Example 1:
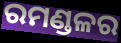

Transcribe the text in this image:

ରମଣ୍ଡଳର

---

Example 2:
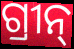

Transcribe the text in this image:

ଗ୍ରୀନ୍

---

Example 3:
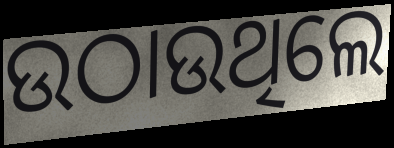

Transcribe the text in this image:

ଉଠାଉଥିଲେ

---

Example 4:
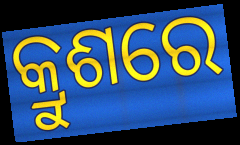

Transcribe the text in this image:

କ୍ରୁଶରେ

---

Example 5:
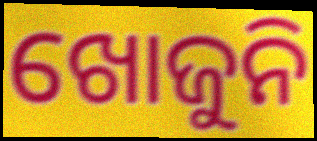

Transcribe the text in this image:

ଖୋଜୁନି